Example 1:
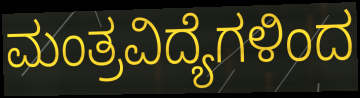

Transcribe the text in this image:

ಮಂತ್ರವಿದ್ಯೆಗಳಿಂದ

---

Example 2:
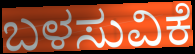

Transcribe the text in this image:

ಬಳಸುವಿಕೆ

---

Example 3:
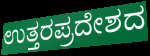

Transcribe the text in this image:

ಉತ್ತರಪ್ರದೇಶದ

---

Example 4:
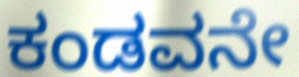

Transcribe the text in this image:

ಕಂಡವನೇ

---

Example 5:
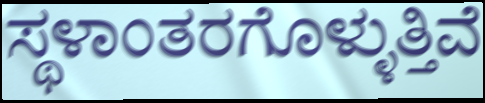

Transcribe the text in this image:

ಸ್ಥಳಾಂತರಗೊಳ್ಳುತ್ತಿವೆ